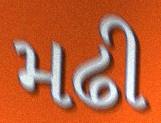
મઢી